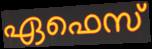
ഏഫെസ്